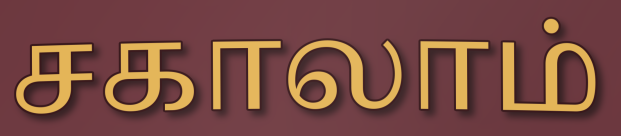
சகாலாம்